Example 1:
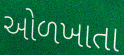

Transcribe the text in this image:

ઓળખાતા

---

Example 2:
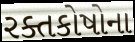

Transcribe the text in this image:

રક્તકોષોના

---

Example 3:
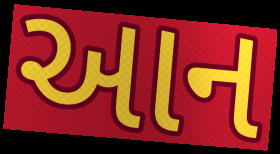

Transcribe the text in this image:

આન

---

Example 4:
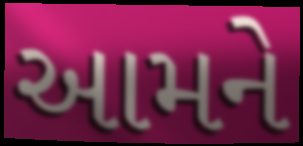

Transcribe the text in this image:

આમને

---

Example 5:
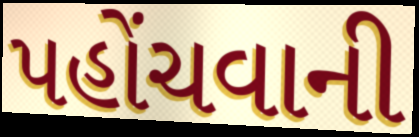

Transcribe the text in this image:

પહોંચવાની